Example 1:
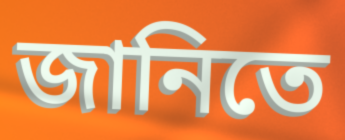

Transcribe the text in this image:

জানিতে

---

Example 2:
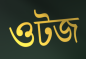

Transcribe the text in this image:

ওটজ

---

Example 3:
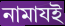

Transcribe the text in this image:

নামাযই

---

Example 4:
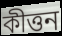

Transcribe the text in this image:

কীত্তন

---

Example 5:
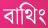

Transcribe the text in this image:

বাথিং